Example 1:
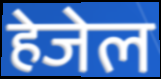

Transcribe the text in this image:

हेजेल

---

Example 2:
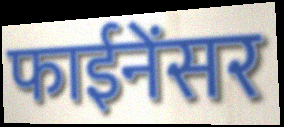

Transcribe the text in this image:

फाईनेंसर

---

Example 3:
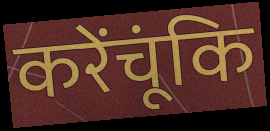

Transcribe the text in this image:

करेंचूंकि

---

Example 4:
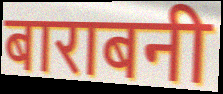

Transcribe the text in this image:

बाराबनी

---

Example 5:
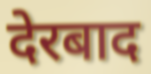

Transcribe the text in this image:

देरबाद